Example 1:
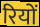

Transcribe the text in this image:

रियों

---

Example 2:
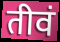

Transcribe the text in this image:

तीवं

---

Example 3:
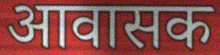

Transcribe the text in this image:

आवासक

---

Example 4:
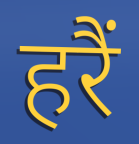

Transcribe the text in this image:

हरैं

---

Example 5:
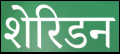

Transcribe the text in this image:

शेरिडन